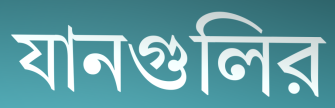
যানগুলির